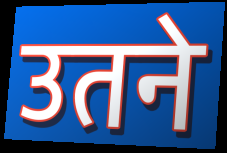
उतने